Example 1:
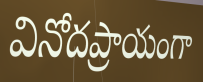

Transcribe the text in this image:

వినోదప్రాయంగా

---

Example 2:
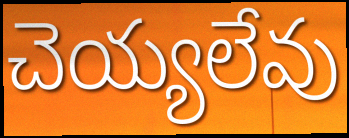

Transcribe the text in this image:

చెయ్యలేవు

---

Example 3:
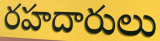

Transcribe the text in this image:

రహదారులు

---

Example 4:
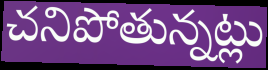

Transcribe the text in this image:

చనిపోతున్నట్లు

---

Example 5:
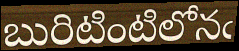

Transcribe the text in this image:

బురిటింటిలోనఁ